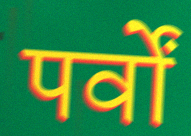
पर्वों